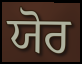
ਯੋਰ